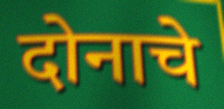
दोनाचे